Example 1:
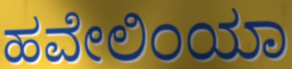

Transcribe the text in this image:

ಹವೇಲಿಂಯಾ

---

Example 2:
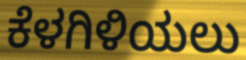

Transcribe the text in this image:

ಕೆಳಗಿಳಿಯಲು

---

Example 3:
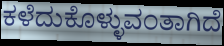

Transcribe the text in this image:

ಕಳೆದುಕೊಳ್ಳುವಂತಾಗಿದೆ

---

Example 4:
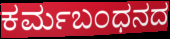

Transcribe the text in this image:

ಕರ್ಮಬಂಧನದ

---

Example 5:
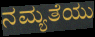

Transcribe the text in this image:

ನಮ್ಯತೆಯು